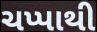
ચપ્પાથી